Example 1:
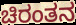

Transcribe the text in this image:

ಚಿರಂತನ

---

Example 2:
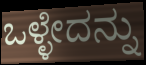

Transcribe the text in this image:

ಒಳ್ಳೇದನ್ನು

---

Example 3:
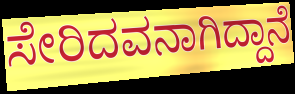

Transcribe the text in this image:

ಸೇರಿದವನಾಗಿದ್ದಾನೆ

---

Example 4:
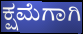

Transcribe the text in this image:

ಕ್ಷಮೆಗಾಗಿ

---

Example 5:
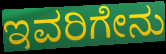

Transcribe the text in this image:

ಇವರಿಗೇನು